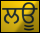
ਲਊ